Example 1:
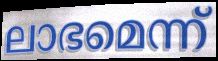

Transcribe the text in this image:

ലാഭമെന്ന്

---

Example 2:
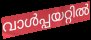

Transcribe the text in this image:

വാൾപ്പയറ്റിൽ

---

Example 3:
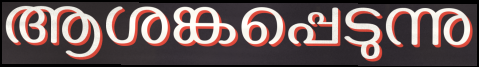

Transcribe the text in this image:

ആശങ്കപ്പെടുന്നു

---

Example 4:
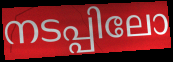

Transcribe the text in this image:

നടപ്പിലോ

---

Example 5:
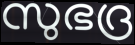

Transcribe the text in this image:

സുഭദ്ര